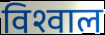
विश्वाल